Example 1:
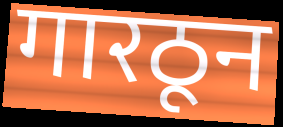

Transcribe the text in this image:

गारठून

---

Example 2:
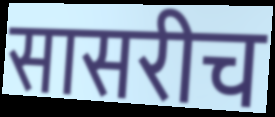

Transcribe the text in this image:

सासरीच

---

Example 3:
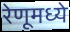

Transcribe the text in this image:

रेणूमध्ये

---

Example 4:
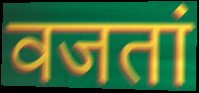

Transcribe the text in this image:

वजतां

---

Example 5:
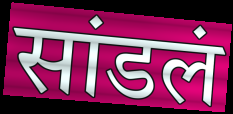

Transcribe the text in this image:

सांडलं